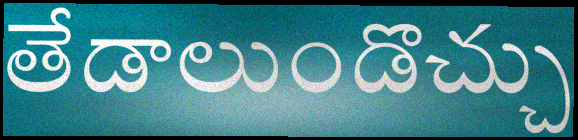
తేడాలుండొచ్చు